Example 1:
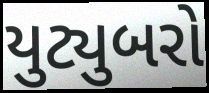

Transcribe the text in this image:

યુટ્યુબરો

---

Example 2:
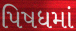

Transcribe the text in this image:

પિષધમાં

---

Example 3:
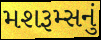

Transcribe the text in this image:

મશરૂમ્સનું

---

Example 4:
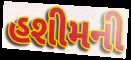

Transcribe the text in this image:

હશીમની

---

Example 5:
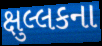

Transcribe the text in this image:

ક્ષુલ્લકના